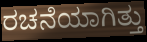
ರಚನೆಯಾಗಿತ್ತು